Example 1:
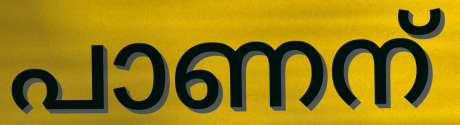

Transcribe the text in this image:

പാണന്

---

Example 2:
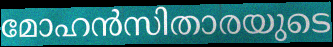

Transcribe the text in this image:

മോഹൻസിതാരയുടെ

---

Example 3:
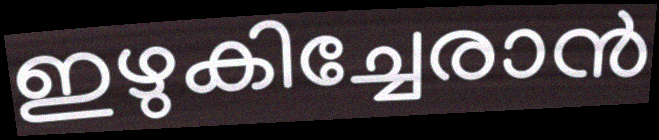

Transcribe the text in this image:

ഇഴുകിച്ചേരാൻ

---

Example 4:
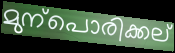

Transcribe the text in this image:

മുന്പൊരിക്കല്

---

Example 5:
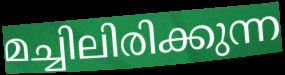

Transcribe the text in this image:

മച്ചിലിരിക്കുന്ന